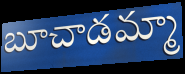
బూచాడమ్మా